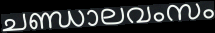
ചണ്ഡാലവംസം